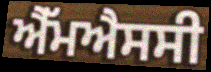
ਐੱਮਐਸਸੀ